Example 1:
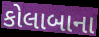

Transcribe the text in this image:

કોલાબાના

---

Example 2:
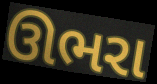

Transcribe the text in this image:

ઊભરા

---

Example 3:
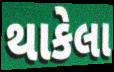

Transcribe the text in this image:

થાકેલા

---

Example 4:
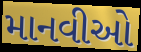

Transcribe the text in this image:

માનવીઓ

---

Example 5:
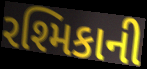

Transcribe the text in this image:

રશ્મિકાની